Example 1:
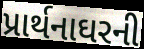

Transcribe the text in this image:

પ્રાર્થનાઘરની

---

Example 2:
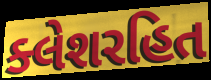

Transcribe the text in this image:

ક્લેશરહિત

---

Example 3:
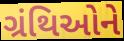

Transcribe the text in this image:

ગ્રંથિઓને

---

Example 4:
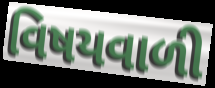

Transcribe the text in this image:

વિષયવાળી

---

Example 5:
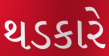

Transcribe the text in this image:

થડકારે